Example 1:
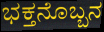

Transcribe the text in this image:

ಭಕ್ತನೊಬ್ಬನ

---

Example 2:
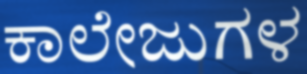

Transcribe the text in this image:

ಕಾಲೇಜುಗಳ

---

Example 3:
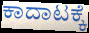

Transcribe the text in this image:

ಕಾದಾಟಕ್ಕೆ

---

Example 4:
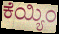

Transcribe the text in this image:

ಕೆಯ್ಯಿಂ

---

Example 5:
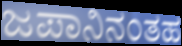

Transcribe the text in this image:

ಜಪಾನಿನಂತಹ